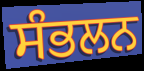
ਸੰਭਲਨ